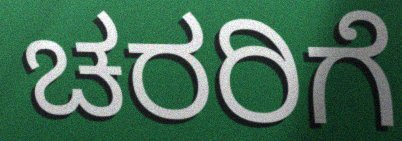
ಚರರಿಗೆ